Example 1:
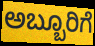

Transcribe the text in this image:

ಅಬ್ಬೂರಿಗೆ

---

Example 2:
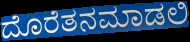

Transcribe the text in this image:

ದೊರೆತನಮಾಡಲಿ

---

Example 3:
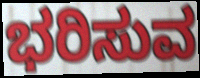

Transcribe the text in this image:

ಭರಿಸುವ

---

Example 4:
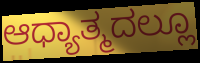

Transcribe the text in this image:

ಆಧ್ಯಾತ್ಮದಲ್ಲೂ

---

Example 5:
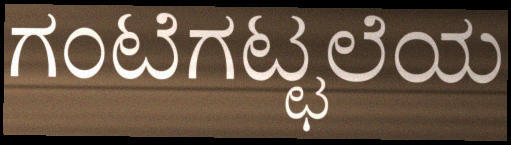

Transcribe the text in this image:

ಗಂಟೆಗಟ್ಟಲೆಯ